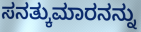
ಸನತ್ಕುಮಾರನನ್ನು